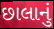
છાલાનું